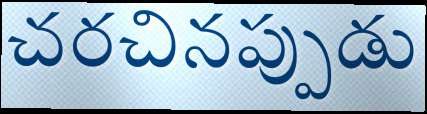
చరచినప్పుడు